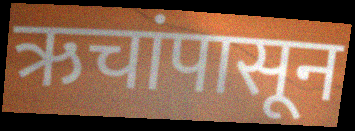
ऋचांपासून